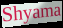
Shyama